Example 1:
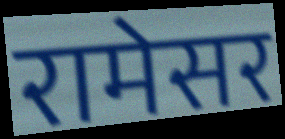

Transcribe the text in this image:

रामेसर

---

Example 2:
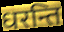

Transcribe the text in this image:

धरन्ति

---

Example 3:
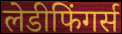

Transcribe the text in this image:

लेडीफिंगर्स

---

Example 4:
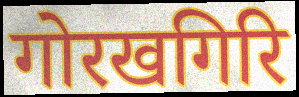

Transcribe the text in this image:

गोरखगिरि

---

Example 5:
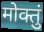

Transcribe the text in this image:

मोक्तुं